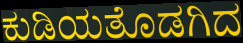
ಕುಡಿಯತೊಡಗಿದ